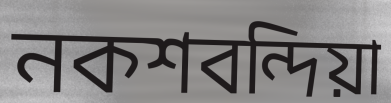
নকশবন্দিয়া